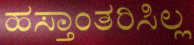
ಹಸ್ತಾಂತರಿಸಿಲ್ಲ